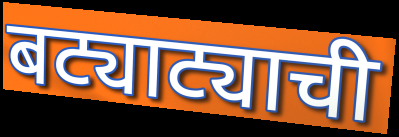
बट्याट्याची